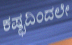
ಕಷ್ಟದಿಂದಲೇ